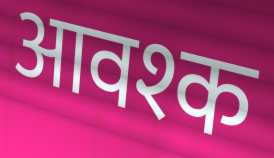
आवश्क